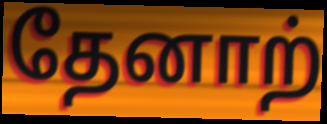
தேனாற்